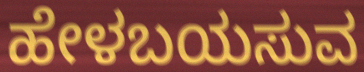
ಹೇಳಬಯಸುವ